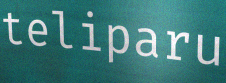
teliparu